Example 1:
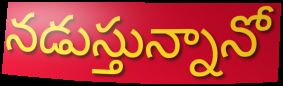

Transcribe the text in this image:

నడుస్తున్నానో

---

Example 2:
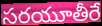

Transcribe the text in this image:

సరయూతీరే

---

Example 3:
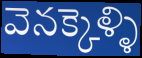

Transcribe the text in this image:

వెనక్కెళ్ళి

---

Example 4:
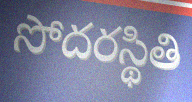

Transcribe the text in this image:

సోదరస్థితి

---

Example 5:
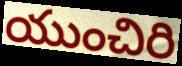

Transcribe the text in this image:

యుంచిరి